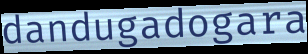
dandugadogara